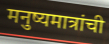
मनुष्यमात्रांची